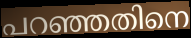
പറഞ്ഞതിനെ